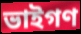
ভাইগণ